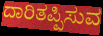
ದಾರಿತಪ್ಪಿಸುವ